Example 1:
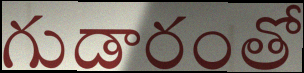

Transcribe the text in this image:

గుడారంతో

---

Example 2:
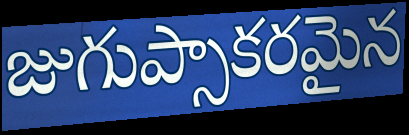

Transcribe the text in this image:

జుగుప్సాకరమైన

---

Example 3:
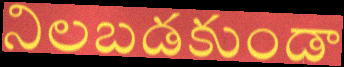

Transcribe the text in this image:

నిలబడకుండా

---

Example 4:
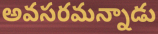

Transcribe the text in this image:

అవసరమన్నాడు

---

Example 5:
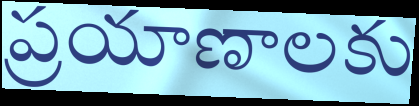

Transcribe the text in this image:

ప్రయాణాలకు